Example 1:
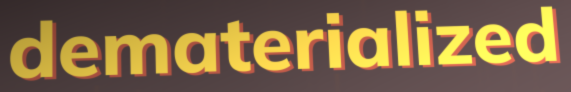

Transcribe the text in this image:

dematerialized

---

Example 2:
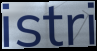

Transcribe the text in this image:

istri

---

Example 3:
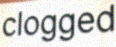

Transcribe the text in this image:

clogged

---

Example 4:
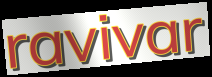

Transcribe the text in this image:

ravivar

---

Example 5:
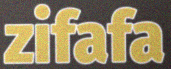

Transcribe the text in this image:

zifafa